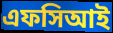
এফসিআই